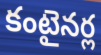
కంటైనర్ల